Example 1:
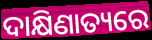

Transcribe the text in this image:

ଦାକ୍ଷିଣାତ୍ୟରେ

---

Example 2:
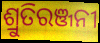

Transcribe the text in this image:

ଶ୍ରୁତିରଞ୍ଜନୀ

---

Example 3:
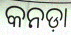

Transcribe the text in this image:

କନଡ଼ା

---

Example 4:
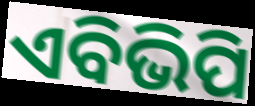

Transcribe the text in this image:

ଏବିଭିପି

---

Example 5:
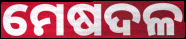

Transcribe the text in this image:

ମେଷଦଳ